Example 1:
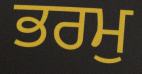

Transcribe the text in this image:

ਭਰਮੁ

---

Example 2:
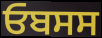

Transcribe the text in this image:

ਓਬਸਸ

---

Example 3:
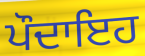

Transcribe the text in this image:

ਪੌਦਾਇਹ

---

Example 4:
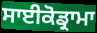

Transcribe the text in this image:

ਸਾਈਕੋਡ੍ਰਾਮਾ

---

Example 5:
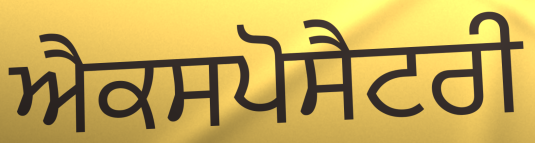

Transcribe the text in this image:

ਐਕਸਪੋਸੈਟਰੀ